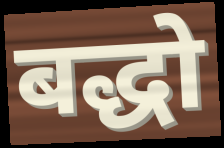
बद्धो